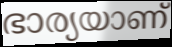
ഭാര്യയാണ്